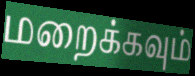
மறைக்கவும்